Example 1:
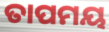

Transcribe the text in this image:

ତାପମୟ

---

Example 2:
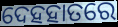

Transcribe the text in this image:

ଦେହହାତରେ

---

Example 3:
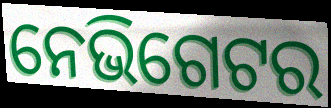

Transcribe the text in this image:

ନେଭିଗେଟର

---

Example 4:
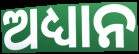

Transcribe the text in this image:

ଅଧ୍ୟାନ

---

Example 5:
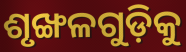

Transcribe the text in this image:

ଶୃଙ୍ଖଳଗୁଡ଼ିକୁ